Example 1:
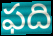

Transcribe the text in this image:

ఫది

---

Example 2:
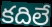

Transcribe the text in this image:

కదిలే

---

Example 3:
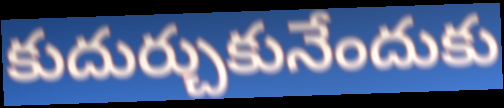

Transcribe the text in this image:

కుదుర్చుకునేందుకు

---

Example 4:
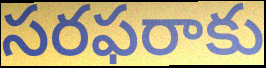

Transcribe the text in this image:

సరఫరాకు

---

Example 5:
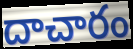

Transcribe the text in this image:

దాచారం